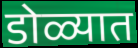
डोळ्यात